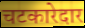
चटकारेदार